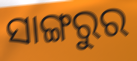
ସାଙ୍ଗରୁର